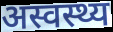
अस्वस्थ्य